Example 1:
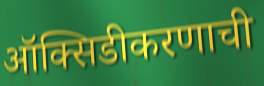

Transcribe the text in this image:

ऑक्सिडीकरणाची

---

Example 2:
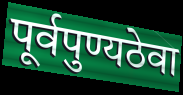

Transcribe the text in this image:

पूर्वपुण्यठेवा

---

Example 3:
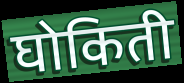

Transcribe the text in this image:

घोकिती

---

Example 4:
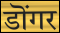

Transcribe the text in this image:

डॊंगर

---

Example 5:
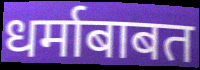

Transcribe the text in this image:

धर्माबाबत